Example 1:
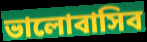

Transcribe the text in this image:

ভালোবাসিব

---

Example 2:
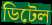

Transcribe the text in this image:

ডিটেল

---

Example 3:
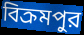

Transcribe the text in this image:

বিক্রমপুর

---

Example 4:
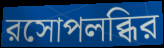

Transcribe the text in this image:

রসোপলব্ধির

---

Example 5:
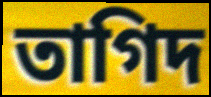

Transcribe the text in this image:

তাগিদ